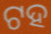
ଟହ